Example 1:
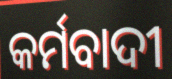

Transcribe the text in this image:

କର୍ମବାଦୀ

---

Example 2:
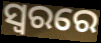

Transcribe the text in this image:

ସ୍ବରରେ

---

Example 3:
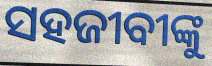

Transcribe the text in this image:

ସହଜୀବୀଙ୍କୁ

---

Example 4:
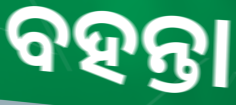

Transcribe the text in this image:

ବହନ୍ତା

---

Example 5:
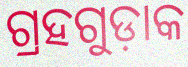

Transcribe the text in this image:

ଗ୍ରହଗୁଡ଼ାକ